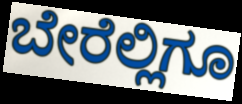
ಬೇರೆಲ್ಲಿಗೂ